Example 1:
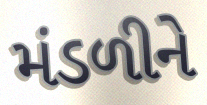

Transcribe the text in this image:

મંડળીને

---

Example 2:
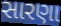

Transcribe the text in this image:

સારણા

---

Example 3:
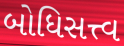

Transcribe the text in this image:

બોધિસત્ત્વ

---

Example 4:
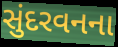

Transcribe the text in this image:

સુંદરવનના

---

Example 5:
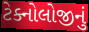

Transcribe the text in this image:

ટેક્નોલોજીનું